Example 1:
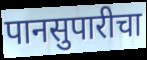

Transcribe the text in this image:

पानसुपारीचा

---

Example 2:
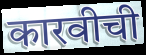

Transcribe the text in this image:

कारवीची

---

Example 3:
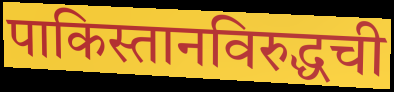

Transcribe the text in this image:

पाकिस्तानविरुद्धची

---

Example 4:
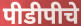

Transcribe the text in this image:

पीडीपीचे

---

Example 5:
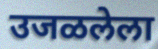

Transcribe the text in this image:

उजळलेला